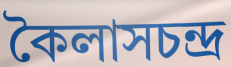
কৈলাসচন্দ্র